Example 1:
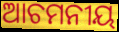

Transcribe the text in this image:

ଆଚମନୀୟ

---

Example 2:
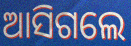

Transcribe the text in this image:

ଆସିଗଲେ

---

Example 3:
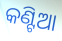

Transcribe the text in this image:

କଣ୍ଟିଆ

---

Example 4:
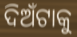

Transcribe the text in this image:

ଦିଅଁଟାକୁ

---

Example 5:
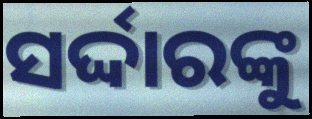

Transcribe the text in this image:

ସର୍ଦ୍ଦାରଙ୍କୁ